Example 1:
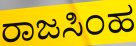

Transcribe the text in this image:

ರಾಜಸಿಂಹ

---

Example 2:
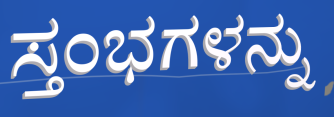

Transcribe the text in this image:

ಸ್ತಂಭಗಳನ್ನು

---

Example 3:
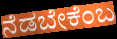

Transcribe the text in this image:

ನೆಡಬೇಕೆಂಬ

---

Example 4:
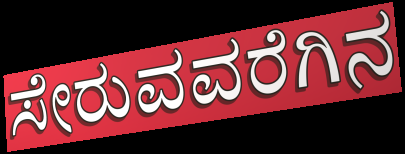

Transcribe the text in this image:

ಸೇರುವವರೆಗಿನ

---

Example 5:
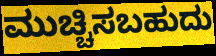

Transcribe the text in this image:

ಮುಚ್ಚಿಸಬಹುದು